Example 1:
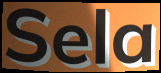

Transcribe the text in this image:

Sela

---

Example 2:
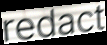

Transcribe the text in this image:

redact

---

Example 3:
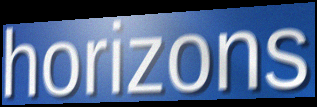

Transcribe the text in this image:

horizons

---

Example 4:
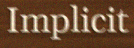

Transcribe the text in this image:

Implicit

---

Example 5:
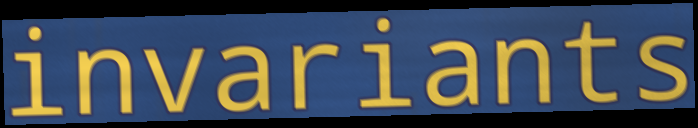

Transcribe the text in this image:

invariants